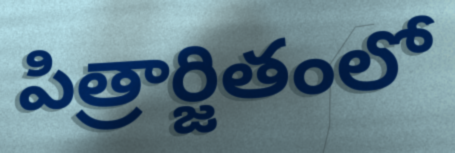
పిత్రార్జితంలో